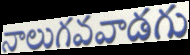
నాలుగవవాడగు